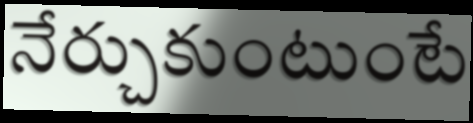
నేర్చుకుంటుంటే